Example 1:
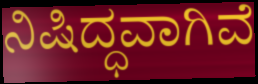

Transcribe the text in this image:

ನಿಷಿದ್ಧವಾಗಿವೆ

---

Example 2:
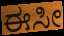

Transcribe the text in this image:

ಈಸೀ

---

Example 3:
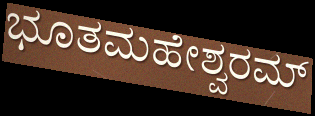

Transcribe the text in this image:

ಭೂತಮಹೇಶ್ವರಮ್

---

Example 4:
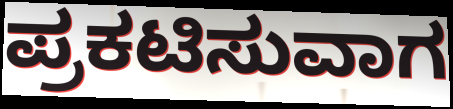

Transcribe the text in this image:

ಪ್ರಕಟಿಸುವಾಗ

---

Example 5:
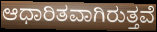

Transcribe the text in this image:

ಆಧಾರಿತವಾಗಿರುತ್ತವೆ